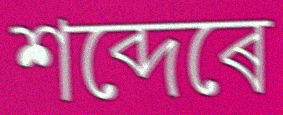
শব্দেৰে